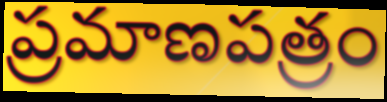
ప్రమాణపత్రం